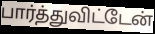
பார்த்துவிட்டேன்